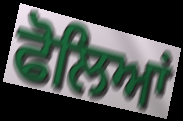
ਫੋਲਿਆਂ